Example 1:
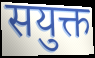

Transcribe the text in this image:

सयुक्त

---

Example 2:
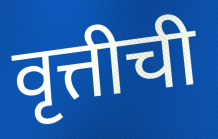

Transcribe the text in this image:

वृत्तीची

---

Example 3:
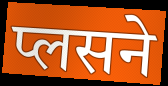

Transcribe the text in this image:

प्लसने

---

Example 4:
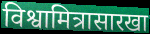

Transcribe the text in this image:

विश्वामित्रासारखा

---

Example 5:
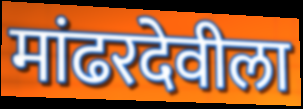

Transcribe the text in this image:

मांढरदेवीला